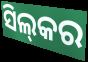
ସିଲ୍‍କର